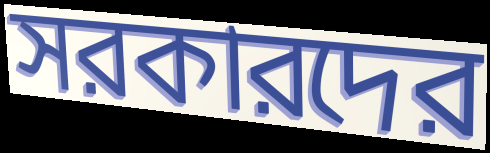
সরকারদের